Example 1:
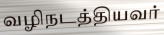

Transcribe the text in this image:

வழிநடத்தியவர்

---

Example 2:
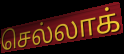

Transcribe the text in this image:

செல்லாக்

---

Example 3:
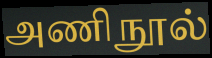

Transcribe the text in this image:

அணிநூல்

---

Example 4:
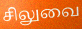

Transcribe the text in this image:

சிலுவை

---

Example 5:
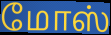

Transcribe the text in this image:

மோஸ்